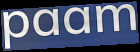
paam